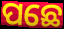
ପଛେ